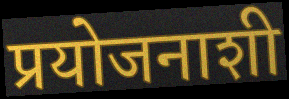
प्रयोजनाशी